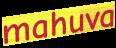
mahuva